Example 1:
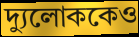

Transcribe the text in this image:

দ্যুলোককেও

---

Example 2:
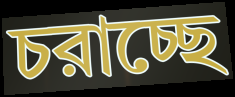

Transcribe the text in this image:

চরাচ্ছে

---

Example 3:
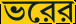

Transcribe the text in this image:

ভরের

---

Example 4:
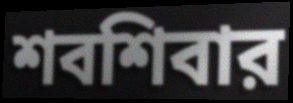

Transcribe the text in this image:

শবশিবার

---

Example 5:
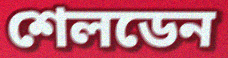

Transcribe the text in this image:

শেলডেন